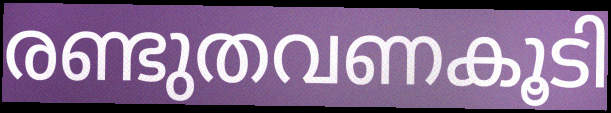
രണ്ടുതവണകൂടി